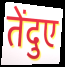
तेंदुए